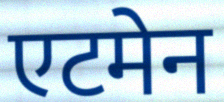
एटमेन